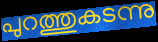
പുറത്തുകടന്നു